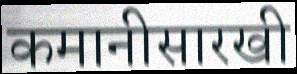
कमानीसारखी